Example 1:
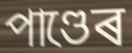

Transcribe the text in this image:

পাণ্ডেৰ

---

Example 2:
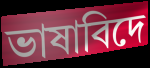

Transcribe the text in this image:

ভাষাবিদে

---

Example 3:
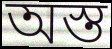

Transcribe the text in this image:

অস্ত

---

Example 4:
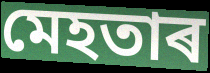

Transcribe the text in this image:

মেহতাৰ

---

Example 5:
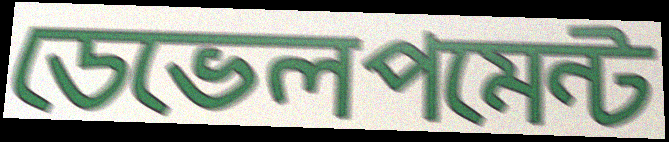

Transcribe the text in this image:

ডেভেলপমেন্ট